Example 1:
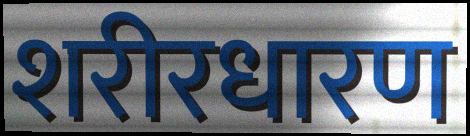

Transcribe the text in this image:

शरीरधारण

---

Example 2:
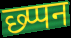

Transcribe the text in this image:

छ्प्पन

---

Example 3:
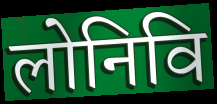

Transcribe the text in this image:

लोनिवि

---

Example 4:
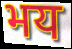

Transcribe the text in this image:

भय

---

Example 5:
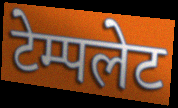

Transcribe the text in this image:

टेम्पलेट